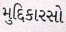
મુદ્દિકારસો